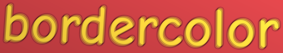
bordercolor